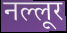
नल्लूर